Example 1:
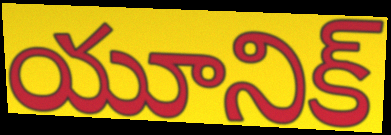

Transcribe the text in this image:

యూనిక్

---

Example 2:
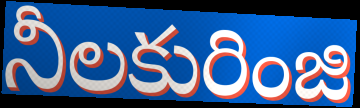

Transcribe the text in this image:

నీలకురింజి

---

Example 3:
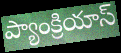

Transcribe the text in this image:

ప్యాంక్రియాస్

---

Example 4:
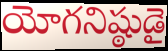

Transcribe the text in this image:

యోగనిష్ఠుడై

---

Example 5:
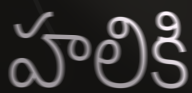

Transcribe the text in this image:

హలికి